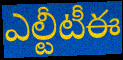
ఎల్టీటీఈ